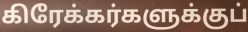
கிரேக்கர்களுக்குப்